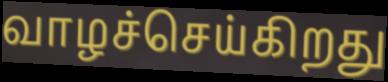
வாழச்செய்கிறது